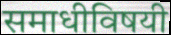
समाधीविषयी